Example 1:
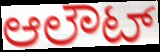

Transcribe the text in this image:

ಆಲೌಟ್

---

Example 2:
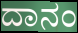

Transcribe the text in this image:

ದಾನಂ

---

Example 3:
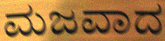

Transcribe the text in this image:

ಮಜವಾದ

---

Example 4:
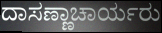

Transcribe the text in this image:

ದಾಸಣ್ಣಾಚಾರ್ಯರು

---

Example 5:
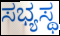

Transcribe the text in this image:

ಸಭ್ಯಸ್ಥ